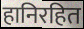
हानिरहित